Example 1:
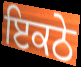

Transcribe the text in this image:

ਇਕਠੇ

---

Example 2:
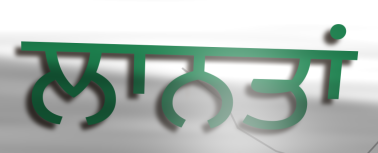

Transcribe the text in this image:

ਲਾਨਤਾਂ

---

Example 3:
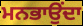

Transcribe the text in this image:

ਮਨਭਾਉਂਦਾ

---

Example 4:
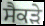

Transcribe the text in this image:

ਸੈਕੜੇ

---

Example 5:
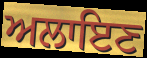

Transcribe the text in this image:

ਅਲਾਇਣ